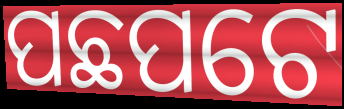
ପଛପଟେ